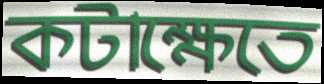
কটাক্ষেতে